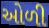
ઓળી